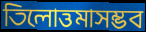
তিলোত্তমাসম্ভব